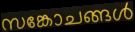
സങ്കോചങ്ങൾ